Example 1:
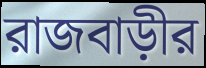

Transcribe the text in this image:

রাজবাড়ীর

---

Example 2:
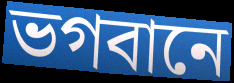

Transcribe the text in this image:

ভগবানে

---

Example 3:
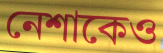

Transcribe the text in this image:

নেশাকেও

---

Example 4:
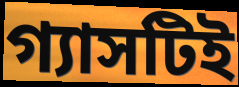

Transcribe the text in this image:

গ্যাসটিই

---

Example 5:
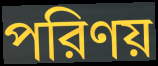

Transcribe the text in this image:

পরিণয়